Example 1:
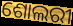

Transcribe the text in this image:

ଶୋଲରୀ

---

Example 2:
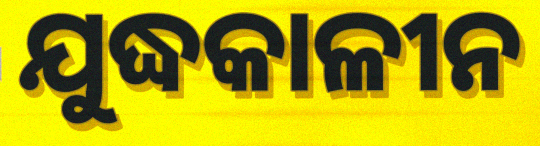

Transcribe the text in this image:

ଯୁଦ୍ଧକାଳୀନ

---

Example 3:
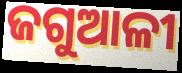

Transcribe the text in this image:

ଜଗୁଆଳୀ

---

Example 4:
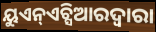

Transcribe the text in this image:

ୟୁଏନ୍ଏଚ୍ସିଆରଦ୍ୱାରା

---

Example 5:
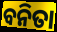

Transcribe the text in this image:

ବନିତା